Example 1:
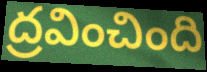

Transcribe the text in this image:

ద్రవించింది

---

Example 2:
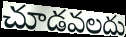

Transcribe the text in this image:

చూడవలదు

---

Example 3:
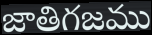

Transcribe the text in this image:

జాతిగజము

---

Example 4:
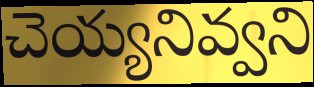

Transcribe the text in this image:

చెయ్యనివ్వని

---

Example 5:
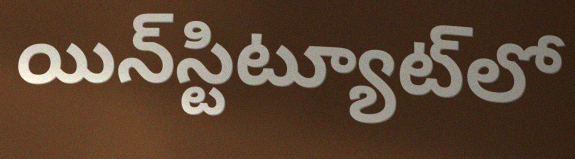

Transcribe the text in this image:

యిన్‌స్టిట్యూట్‌లో